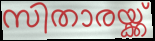
സിതാരയ്ക്ക്